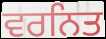
ਵਰਨਿਤ